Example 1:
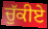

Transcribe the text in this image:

ਚੁੱਕੀਏ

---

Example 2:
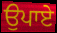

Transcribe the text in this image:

ਉਪਾਏ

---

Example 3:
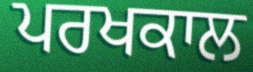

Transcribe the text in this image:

ਪਰਖਕਾਲ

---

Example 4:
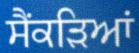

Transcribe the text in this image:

ਸੈਂਕੜਿਆਂ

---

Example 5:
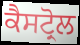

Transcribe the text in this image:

ਕੈਸਟ੍ਰੋਲ